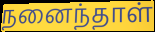
நனைந்தாள்